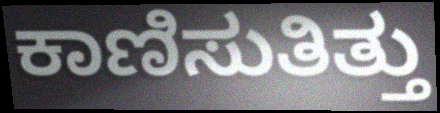
ಕಾಣಿಸುತಿತ್ತು